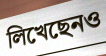
লিখেছেনও